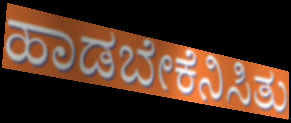
ಹಾಡಬೇಕೆನಿಸಿತು